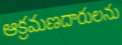
ఆక్రమణదారులను